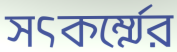
সৎকর্ম্মের